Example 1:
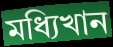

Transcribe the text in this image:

মধ্যিখান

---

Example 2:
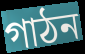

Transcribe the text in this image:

গাঠন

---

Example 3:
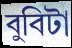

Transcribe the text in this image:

বুবিটা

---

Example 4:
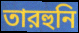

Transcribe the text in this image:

তারহুনি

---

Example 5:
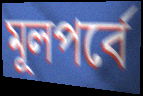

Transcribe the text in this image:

মূলপর্বে